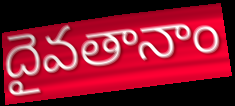
దైవతానాం